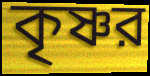
কৃষ্ণর